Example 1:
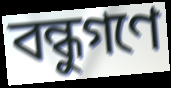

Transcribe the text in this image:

বন্ধুগণে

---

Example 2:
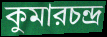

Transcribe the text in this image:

কুমারচন্দ্র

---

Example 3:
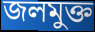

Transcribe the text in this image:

জলমুক্ত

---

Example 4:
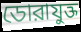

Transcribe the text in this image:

ডোরাযুক্ত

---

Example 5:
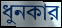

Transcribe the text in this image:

ধুনকার